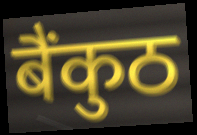
बैंकुठ